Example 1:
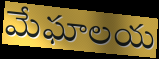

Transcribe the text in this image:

మేఘాలయ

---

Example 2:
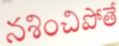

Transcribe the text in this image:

నశించిపోతే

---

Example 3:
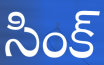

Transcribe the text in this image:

సింక్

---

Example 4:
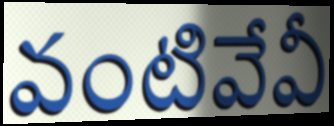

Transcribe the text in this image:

వంటివేవీ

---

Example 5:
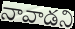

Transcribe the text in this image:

నావాడని